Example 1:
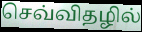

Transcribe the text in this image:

செவ்விதழில்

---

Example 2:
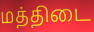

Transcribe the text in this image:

மத்திடை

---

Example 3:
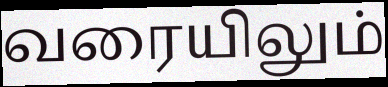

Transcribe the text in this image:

வரையிலும்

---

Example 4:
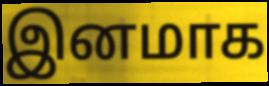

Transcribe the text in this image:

இனமாக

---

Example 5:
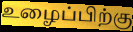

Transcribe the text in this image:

உழைப்பிற்கு